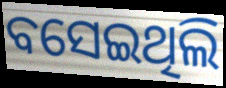
ବସେଇଥିଲି